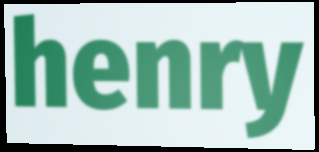
henry